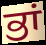
ਭਾਂ